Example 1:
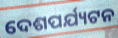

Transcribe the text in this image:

ଦେଶପର୍ଯ୍ୟଟନ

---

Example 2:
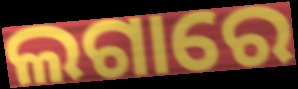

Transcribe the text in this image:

ଲଗାରେ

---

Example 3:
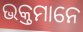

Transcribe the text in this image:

ଭକ୍ତମାନେ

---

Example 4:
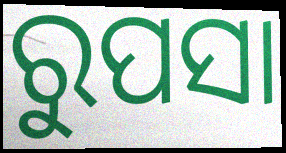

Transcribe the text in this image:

ରୁପସା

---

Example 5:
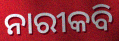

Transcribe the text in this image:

ନାରୀକବି